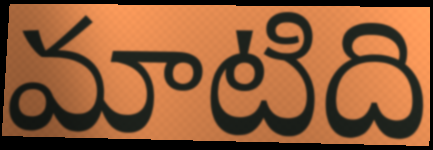
మాటిది